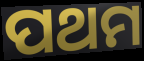
ପଥମ